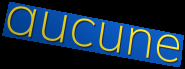
aucune